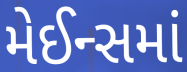
મેઈન્સમાં